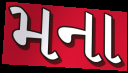
મના